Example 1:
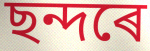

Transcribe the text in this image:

ছন্দৰে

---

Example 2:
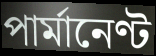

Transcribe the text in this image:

পাৰ্মানেণ্ট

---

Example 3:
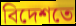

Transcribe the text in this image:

বিদেশতে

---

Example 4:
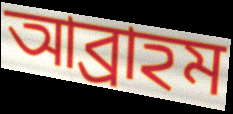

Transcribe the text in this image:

আব্ৰাহম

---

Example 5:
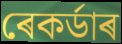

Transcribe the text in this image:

ৰেকৰ্ডাৰ